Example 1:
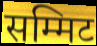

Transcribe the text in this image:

सम्मिट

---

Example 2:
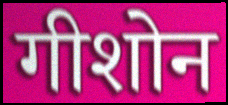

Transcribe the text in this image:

गीशोन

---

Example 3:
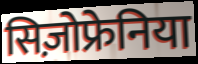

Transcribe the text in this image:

सिज़ोफ्रेनिया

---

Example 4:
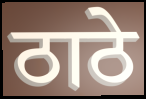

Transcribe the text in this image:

ठाठे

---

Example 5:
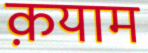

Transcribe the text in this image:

क़याम